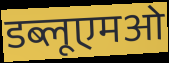
डब्लूएमओ